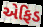
એફિડ